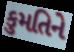
કુમતિને